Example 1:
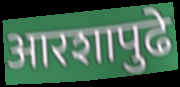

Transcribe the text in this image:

आरशापुढे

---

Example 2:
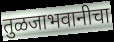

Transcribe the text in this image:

तुळजाभवानीचा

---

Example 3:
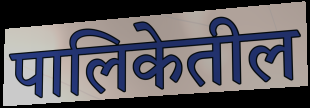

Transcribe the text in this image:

पालिकेतील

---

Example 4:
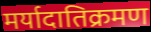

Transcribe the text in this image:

मर्यादातिक्रमण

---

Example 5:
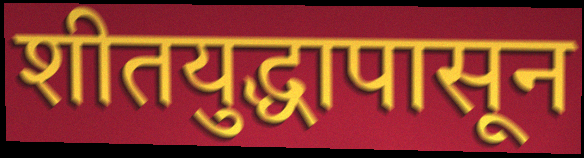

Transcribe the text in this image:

शीतयुद्धापासून